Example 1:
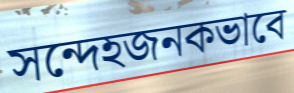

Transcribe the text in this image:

সন্দেহজনকভাবে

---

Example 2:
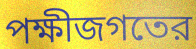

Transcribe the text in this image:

পক্ষীজগতের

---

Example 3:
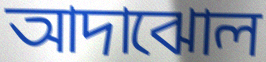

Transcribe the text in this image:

আদাঝোল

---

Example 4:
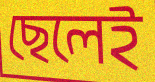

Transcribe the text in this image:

ছেলেই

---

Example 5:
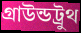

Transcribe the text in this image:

গ্রাউন্ডট্রুথ